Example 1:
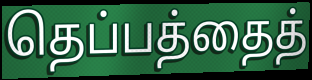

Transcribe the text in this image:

தெப்பத்தைத்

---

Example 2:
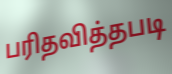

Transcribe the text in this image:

பரிதவித்தபடி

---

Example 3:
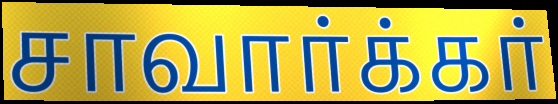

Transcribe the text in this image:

சாவார்க்கர்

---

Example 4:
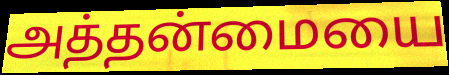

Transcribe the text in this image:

அத்தன்மையை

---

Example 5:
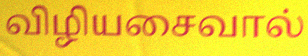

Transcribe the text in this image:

விழியசைவால்